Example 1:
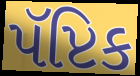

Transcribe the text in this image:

પૅપ્ટિક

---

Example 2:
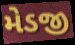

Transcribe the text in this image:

મેડજી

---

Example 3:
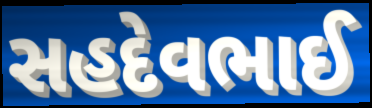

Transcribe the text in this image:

સહદેવભાઈ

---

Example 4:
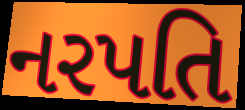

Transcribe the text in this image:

નરપતિ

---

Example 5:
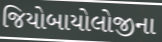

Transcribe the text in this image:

જિયોબાયોલોજીના